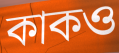
কাকও